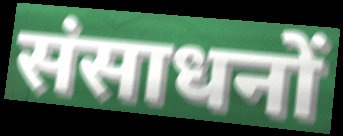
संसाधनों